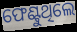
ଫେଣ୍ଟୁଥିଲେ